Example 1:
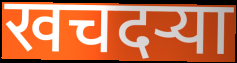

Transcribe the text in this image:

खचदऱ्या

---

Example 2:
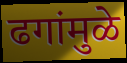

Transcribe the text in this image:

ढगांमुळे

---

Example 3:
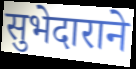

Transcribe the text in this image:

सुभेदाराने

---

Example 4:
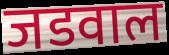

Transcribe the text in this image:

जडवाल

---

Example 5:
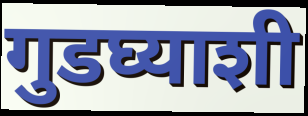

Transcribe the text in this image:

गुडघ्याशी